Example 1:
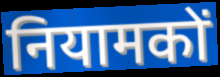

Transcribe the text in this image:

नियामकों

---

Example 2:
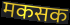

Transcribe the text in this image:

मकसक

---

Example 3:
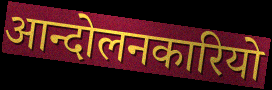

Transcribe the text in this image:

आन्दोलनकारियो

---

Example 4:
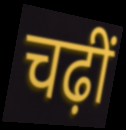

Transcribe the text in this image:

चढ़ीं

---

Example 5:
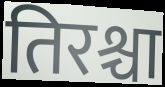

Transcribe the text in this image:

तिरश्चा